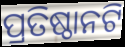
ପ୍ରତିଷ୍ଠାନଟି